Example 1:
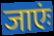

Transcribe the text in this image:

जाएंः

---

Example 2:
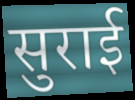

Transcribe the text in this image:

सुराई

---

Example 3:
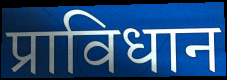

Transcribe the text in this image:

प्राविधान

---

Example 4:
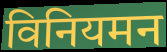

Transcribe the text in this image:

विनियमन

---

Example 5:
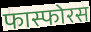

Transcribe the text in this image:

फास्फोरस